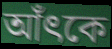
আঁৎকে